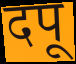
दपू